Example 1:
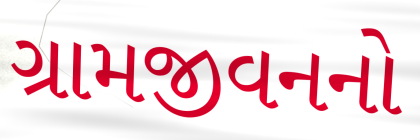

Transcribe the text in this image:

ગ્રામજીવનનો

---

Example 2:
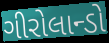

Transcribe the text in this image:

ગીરોલાન્ડો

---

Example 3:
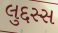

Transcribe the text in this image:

લુદ્દસ્સ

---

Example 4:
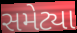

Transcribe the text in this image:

સમેટ્યા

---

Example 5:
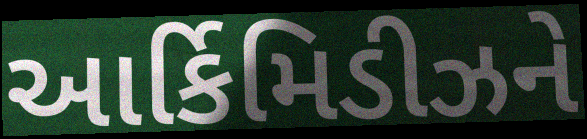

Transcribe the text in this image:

આર્કિમિડીઝને